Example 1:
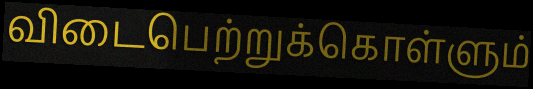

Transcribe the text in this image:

விடைபெற்றுக்கொள்ளும்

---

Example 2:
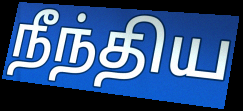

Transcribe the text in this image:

நீந்திய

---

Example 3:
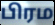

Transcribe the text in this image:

பிரம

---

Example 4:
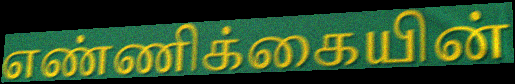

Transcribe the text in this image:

எண்ணிக்கையின்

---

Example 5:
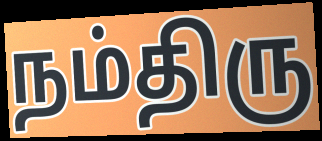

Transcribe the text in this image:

நம்திரு